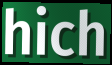
hich